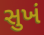
સુખં